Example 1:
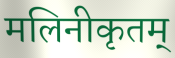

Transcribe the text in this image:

मलिनीकृतम्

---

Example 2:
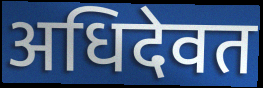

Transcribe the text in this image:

अधिदेवत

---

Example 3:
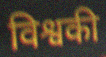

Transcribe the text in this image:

विश्वकी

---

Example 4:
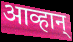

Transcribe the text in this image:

आव्हान्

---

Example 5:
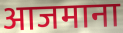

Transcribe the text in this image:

आजमाना